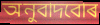
অনুবাদবোৰ